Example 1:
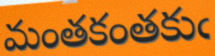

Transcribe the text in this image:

మంతకంతకుఁ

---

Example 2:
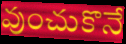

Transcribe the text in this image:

వుంచుకొనే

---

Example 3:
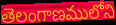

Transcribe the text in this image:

తెలంగాణములోని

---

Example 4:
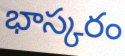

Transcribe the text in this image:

భాస్కరం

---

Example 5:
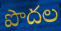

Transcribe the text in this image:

పొదల